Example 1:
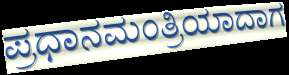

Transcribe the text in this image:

ಪ್ರಧಾನಮಂತ್ರಿಯಾದಾಗ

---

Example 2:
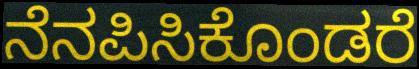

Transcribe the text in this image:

ನೆನಪಿಸಿಕೊಂಡರೆ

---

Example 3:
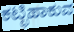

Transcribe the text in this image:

ಕಟ್ಟಿಹಾಕುವ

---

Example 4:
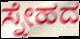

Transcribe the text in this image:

ಸ್ನೇಹದ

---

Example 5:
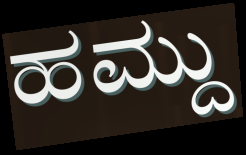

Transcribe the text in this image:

ಹಮ್ದು